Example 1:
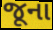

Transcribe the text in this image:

જૂના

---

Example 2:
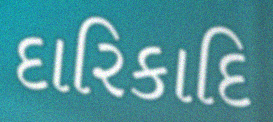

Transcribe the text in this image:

દારિકાદિ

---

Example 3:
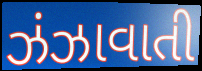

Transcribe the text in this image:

ઝંઝાવાતી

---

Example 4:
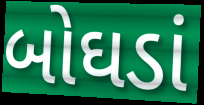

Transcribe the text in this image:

બોઘડાં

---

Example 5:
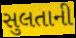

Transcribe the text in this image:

સુલતાની